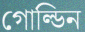
গোল্ডিন